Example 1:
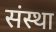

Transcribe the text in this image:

संस्था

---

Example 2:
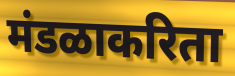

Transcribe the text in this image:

मंडळाकरिता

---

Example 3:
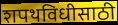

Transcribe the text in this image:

शपथविधीसाठी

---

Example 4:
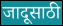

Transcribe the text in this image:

जादूसाठी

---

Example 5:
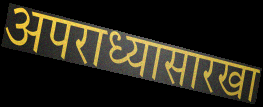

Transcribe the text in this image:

अपराध्यासारखा